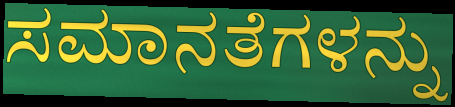
ಸಮಾನತೆಗಳನ್ನು